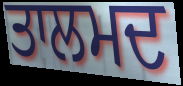
ਤਾਲਮਦ